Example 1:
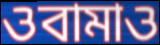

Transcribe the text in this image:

ওবামাও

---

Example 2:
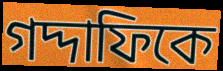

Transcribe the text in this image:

গদ্দাফিকে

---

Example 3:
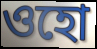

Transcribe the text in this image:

ওহো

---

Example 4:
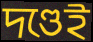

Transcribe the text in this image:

দণ্ডেই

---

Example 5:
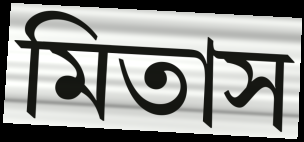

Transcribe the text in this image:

মিতাস